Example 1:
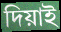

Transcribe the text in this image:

দিয়াই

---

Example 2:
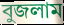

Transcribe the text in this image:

বুজলাম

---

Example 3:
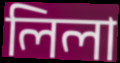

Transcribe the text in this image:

লিলা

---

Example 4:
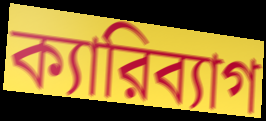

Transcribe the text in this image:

ক্যারিব্যাগ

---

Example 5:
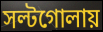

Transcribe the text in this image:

সল্টগোলায়